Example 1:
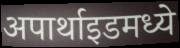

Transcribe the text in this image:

अपार्थाइडमध्ये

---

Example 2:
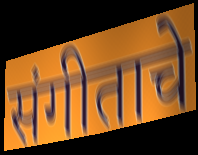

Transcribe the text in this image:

संगीताचे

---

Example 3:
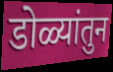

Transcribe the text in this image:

डोळ्यांतुन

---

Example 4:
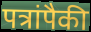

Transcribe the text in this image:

पत्रांपैकी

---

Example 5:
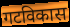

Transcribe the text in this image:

गटविकास